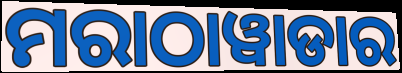
ମରାଠାୱାଡାର